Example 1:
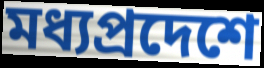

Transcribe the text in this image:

মধ্যপ্রদেশে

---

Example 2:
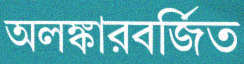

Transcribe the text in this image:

অলঙ্কারবর্জিত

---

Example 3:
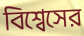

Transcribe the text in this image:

বিশ্বেসের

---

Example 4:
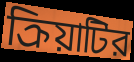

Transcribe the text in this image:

ক্রিয়াটির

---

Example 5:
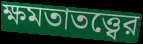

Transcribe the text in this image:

ক্ষমতাতত্ত্বের